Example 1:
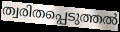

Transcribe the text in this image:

ത്വരിതപ്പെടുത്തൽ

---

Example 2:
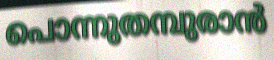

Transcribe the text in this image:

പൊന്നുതമ്പുരാൻ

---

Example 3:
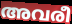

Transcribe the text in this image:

അവരീ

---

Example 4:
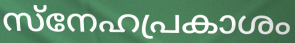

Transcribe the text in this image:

സ്നേഹപ്രകാശം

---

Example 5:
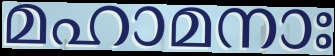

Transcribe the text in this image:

മഹാമനാഃ